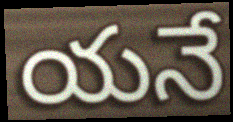
యనే